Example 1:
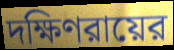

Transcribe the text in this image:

দক্ষিণরায়ের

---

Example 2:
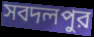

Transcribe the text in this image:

সবদলপুর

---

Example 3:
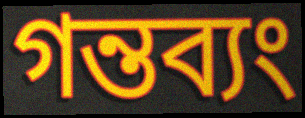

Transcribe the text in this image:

গন্তব্যং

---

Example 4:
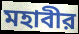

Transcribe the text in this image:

মহাবীর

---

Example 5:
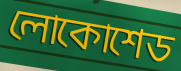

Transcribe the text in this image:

লোকোশেড